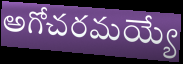
అగోచరమయ్యే